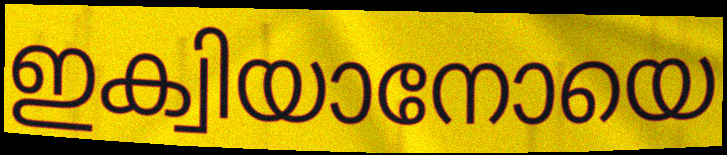
ഇക്വിയാനോയെ